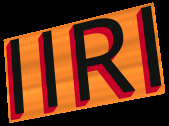
IIRI